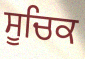
ਸੂਚਿਕ